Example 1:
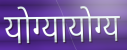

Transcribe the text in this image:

योग्यायोग्य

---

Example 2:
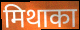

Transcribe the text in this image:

मिथाका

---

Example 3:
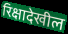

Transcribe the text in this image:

रिक्षादेखील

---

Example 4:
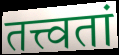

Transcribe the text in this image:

तत्त्वतां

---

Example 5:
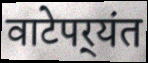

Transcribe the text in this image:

वाटेपर्यंत